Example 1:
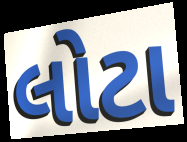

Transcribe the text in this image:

લોટા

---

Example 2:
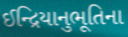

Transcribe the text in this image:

ઈન્દ્રિયાનુભૂતિના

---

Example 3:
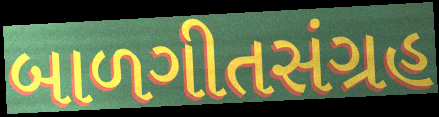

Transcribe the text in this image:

બાળગીતસંગ્રહ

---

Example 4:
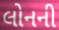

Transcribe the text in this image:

લોનની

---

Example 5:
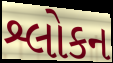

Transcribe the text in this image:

શ્લોકન